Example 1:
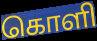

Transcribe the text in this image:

கொளி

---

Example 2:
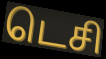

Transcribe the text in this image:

டெசி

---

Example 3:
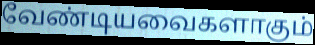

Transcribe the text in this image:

வேண்டியவைகளாகும்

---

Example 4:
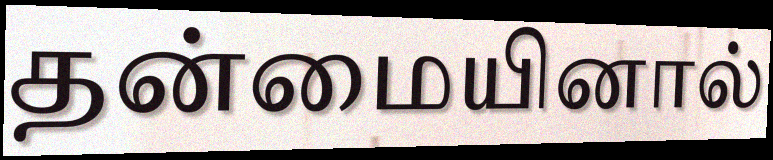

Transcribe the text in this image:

தன்மையினால்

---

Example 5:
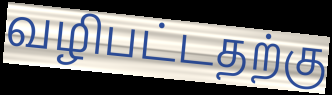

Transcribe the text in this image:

வழிபட்டதற்கு